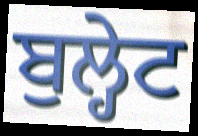
ਬੁਲ੍ਹੇਟ